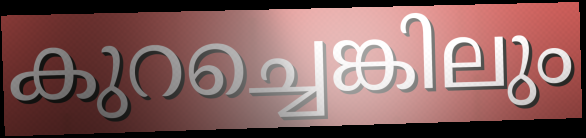
കുറച്ചെങ്കിലും